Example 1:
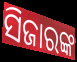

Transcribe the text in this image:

ସିଜାରଙ୍କ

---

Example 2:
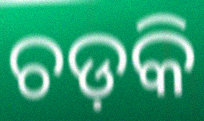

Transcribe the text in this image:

ଚଡ଼କି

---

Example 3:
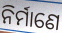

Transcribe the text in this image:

ନିର୍ମାଣେ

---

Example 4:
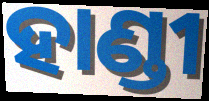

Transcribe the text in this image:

ହାଣ୍ଡୀ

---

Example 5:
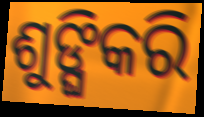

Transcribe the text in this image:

ଶୁଙ୍ଘିକରି